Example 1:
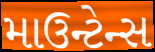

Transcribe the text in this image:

માઉન્ટેન્સ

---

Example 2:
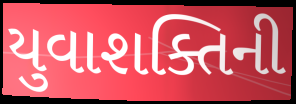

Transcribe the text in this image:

યુવાશક્તિની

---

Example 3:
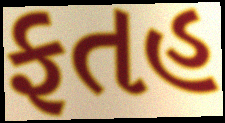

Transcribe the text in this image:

ફતહ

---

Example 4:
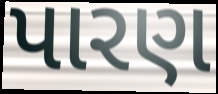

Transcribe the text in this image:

પારણ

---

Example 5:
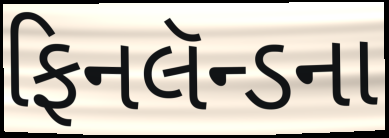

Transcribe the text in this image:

ફિનલૅન્ડના